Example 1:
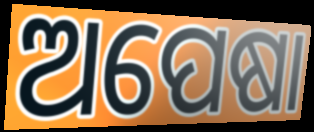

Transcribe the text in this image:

ଅପେଷା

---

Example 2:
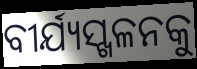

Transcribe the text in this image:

ବୀର୍ଯ୍ୟସ୍ଖଳନକୁ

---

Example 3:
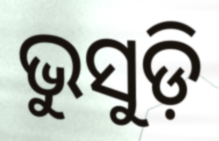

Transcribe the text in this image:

ଭୁସୁଡ଼ି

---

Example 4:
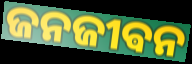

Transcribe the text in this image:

ଜନଜୀଵନ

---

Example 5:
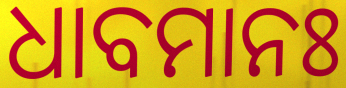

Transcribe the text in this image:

ଧାବମାନଃ